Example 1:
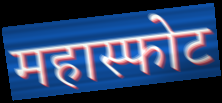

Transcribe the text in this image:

महास्फोट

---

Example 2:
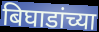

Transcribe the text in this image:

बिघाडांच्या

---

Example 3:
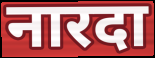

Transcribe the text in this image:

नारदा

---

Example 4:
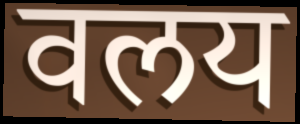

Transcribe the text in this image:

वलय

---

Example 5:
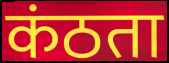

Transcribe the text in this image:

कंठता